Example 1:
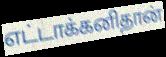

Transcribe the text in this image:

எட்டாக்கனிதான்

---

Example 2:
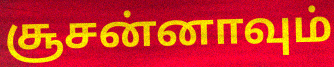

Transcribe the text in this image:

சூசன்னாவும்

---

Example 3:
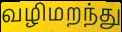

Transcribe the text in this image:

வழிமறந்து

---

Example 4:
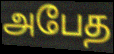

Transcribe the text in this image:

அபேத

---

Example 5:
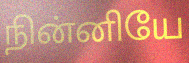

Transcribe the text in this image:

நின்னியே